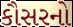
કૌસરનો